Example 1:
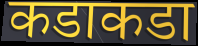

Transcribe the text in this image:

कडाकडा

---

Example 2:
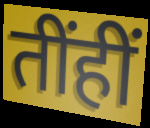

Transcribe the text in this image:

तींहीं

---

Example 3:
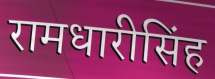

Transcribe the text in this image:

रामधारीसिंह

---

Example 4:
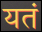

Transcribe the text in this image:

यतं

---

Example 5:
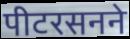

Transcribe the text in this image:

पीटरसनने